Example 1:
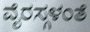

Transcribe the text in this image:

ವೈರಸ್ಗಳಂತೆ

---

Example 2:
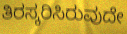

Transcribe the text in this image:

ತಿರಸ್ಕರಿಸಿರುವುದೇ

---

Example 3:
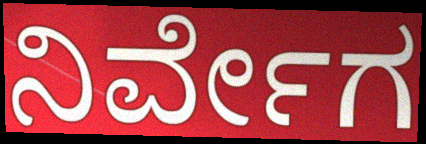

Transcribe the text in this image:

ನಿರ್ವೇಗ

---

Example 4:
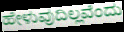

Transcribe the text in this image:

ಹೇಳುವುದಿಲ್ಲವೆಂದು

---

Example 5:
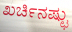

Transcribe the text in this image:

ಖರ್ಚಿನಷ್ಟು